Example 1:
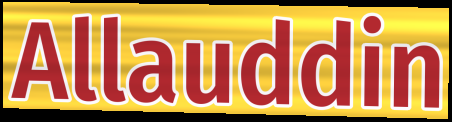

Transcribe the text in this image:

Allauddin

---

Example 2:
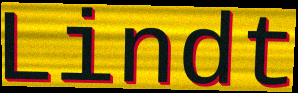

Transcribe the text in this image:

Lindt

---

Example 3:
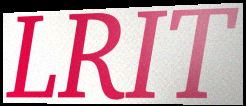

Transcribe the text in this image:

LRIT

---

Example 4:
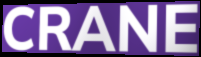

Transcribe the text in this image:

CRANE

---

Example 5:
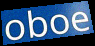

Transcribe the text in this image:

oboe